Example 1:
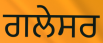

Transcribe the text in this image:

ਗਲੇਸਰ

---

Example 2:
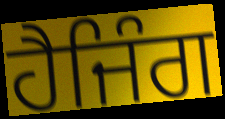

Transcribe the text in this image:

ਹੈਜਿੰਗ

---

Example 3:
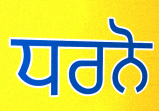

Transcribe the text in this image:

ਧਰਨੋ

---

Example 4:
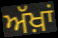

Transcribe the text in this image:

ਅੱਖ਼ਾਂ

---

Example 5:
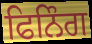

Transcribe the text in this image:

ਫਿਨਿੰਗ